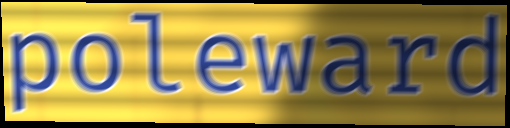
poleward